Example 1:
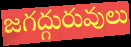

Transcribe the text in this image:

జగద్గురువులు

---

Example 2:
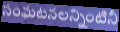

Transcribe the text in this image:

సంఘటనలన్నింటినీ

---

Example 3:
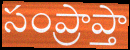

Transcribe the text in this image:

సంప్రాప్తా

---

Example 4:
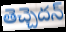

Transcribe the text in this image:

తెచ్చెదన్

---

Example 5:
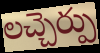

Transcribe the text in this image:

లచ్చెర్పు